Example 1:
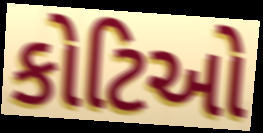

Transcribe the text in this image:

કોટિઓ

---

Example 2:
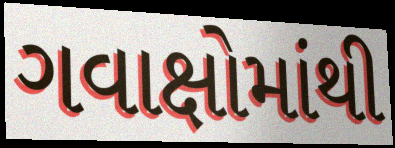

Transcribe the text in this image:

ગવાક્ષોમાંથી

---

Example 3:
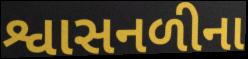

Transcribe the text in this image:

શ્વાસનળીના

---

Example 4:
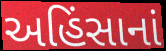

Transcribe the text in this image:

અહિંસાનાં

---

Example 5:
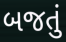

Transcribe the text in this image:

બજતું